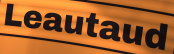
Leautaud